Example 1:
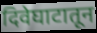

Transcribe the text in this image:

दिवेघाटातून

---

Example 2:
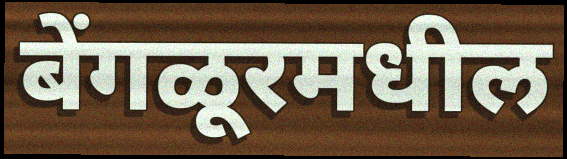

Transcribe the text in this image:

बेंगळूरमधील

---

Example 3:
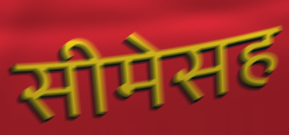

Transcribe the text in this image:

सीमेसह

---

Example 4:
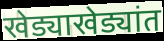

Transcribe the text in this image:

खेड्याखेड्यांत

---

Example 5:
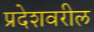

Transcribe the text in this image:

प्रदेशवरील